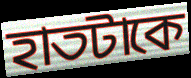
হাতটাকে